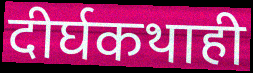
दीर्घकथाही